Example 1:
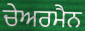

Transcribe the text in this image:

ਚੇਅਰਮੈਨ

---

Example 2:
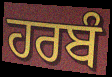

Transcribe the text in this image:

ਹਰਬੰ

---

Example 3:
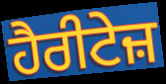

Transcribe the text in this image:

ਹੈਰੀਟੇਜ਼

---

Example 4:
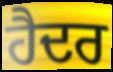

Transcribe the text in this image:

ਹੈਦਰ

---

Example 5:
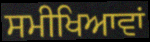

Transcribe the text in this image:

ਸਮੀਖਿਆਵਾਂ